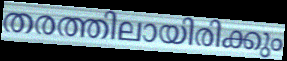
തരത്തിലായിരിക്കും